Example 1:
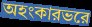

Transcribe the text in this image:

অহংকারভরে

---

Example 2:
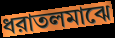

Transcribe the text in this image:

ধরাতলমাঝে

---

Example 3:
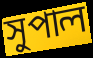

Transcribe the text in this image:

সুপাল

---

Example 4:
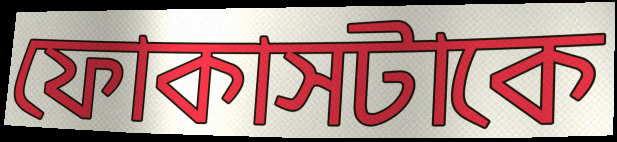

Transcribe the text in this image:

ফোকাসটাকে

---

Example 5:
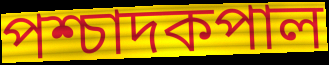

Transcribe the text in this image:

পশ্চাদকপাল